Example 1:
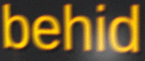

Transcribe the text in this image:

behid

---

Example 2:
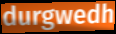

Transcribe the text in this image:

durgwedh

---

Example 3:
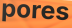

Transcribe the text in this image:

pores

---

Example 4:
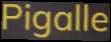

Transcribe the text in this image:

Pigalle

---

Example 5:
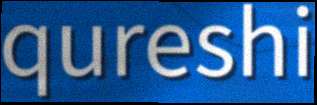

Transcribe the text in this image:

qureshi